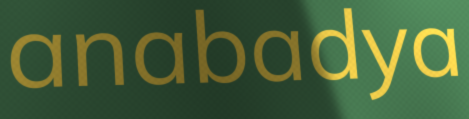
anabadya